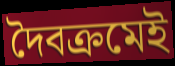
দৈবক্রমেই